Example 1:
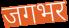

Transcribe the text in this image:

जगभर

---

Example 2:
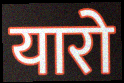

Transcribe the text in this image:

यारो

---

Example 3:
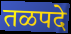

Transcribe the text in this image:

तळपदे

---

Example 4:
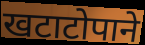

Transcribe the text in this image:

खटाटोपाने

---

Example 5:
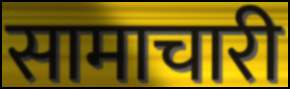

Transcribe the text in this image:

सामाचारी